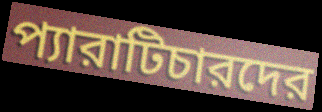
প্যারাটিচারদের